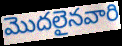
మొదలైనవారి